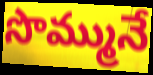
సొమ్మునే